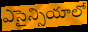
ఎసైన్సియాలో